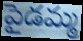
పైడమ్మ